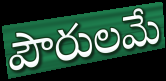
పౌరులమే